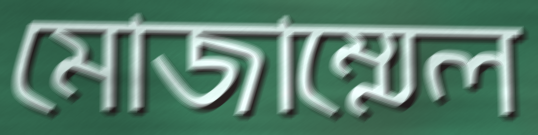
মোজাম্মেল